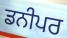
ਡਨੀਪਰ